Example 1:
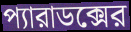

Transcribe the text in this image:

প্যারাডক্সের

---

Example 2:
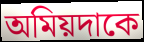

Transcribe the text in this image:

অমিয়দাকে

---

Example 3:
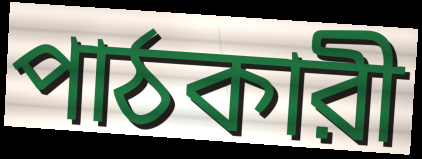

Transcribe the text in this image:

পাঠকারী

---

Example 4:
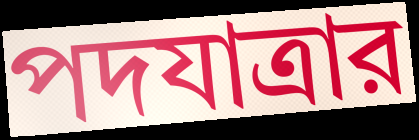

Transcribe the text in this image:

পদযাত্রার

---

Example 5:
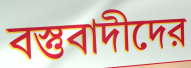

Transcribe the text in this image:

বস্তুবাদীদের